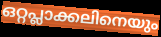
ഒറ്റപ്ലാക്കലിനെയും